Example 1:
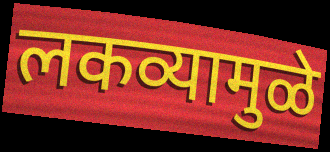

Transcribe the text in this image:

लकव्यामुळे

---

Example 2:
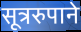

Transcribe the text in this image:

सूत्ररुपाने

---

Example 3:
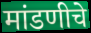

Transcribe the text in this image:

मांडणीचे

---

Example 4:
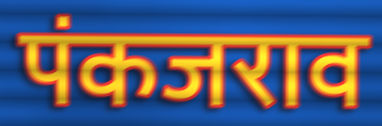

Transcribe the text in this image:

पंकजराव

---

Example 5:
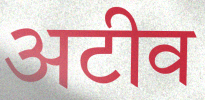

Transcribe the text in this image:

अटीव